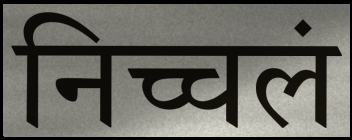
निच्चलं